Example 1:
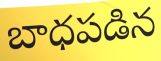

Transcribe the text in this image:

బాధపడిన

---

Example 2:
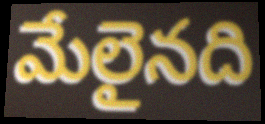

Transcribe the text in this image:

మేలైనది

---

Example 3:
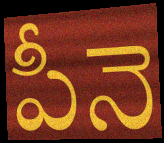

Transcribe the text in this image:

పీనె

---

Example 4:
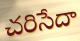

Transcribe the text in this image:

చరిసేదా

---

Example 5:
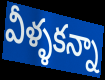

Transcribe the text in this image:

వీళ్ళకన్నా